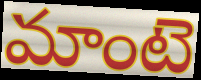
మాంటె